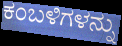
ಕಂಬಳಿಗಳನ್ನು